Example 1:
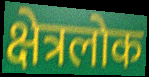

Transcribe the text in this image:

क्षेत्रलोक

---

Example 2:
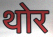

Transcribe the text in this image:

थोर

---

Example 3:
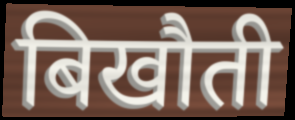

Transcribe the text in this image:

बिखौती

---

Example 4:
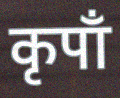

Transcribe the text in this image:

कृपाँ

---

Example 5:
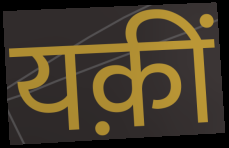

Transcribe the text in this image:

यक़ीं